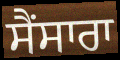
ਸੈਂਸਾਰਾ